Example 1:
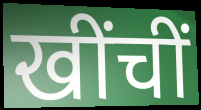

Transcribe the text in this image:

खींचीं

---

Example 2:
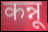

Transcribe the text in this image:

कन्नू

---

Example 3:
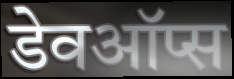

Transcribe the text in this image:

डेवऑप्स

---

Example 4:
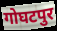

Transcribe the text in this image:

गोघटपुर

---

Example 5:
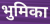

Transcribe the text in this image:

भुमिका